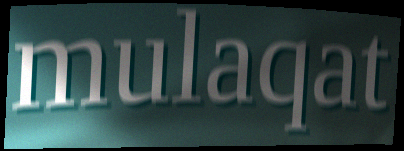
mulaqat